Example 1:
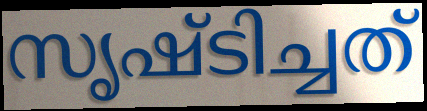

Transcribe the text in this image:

സൃഷ്ടിച്ചത്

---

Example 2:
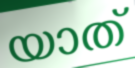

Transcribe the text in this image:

യാത്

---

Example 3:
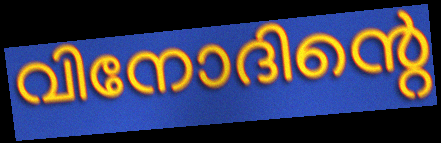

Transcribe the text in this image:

വിനോദിന്റെ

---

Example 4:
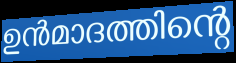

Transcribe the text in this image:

ഉൻമാദത്തിന്റെ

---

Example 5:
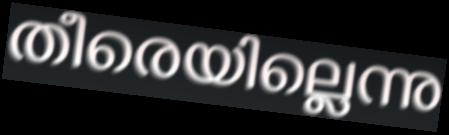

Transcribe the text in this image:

തീരെയില്ലെന്നു